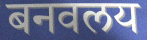
बनवलय